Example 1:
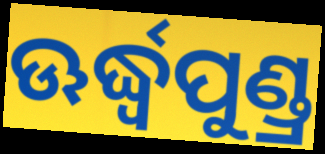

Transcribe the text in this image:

ଊର୍ଦ୍ଧ୍ୱପୁଣ୍ଡ୍ର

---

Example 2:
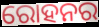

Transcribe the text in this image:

ରୋହନର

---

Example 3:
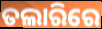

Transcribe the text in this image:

ତଲାରିରେ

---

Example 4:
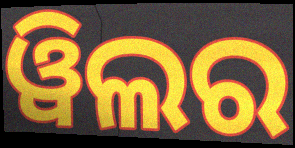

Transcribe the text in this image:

ୱିଲର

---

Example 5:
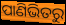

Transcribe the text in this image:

ପାଣିଭିତରୁ